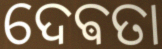
ଦେଵତା